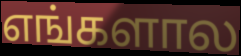
எங்களால